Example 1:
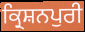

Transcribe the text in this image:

ਕ੍ਰਿਸ਼ਨਪੁਰੀ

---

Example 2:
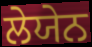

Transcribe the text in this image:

ਲੇਯੇਨ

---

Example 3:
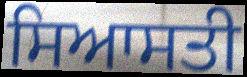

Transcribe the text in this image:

ਸਿਆਸਤੀ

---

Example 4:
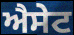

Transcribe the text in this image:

ਐਸੇਟ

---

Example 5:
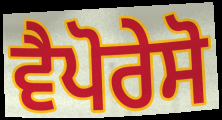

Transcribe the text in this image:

ਵੈਪੋਰੇਸੋ